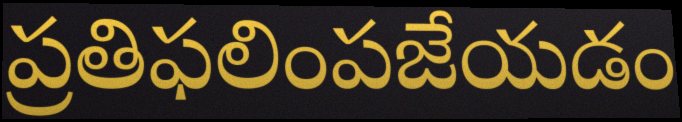
ప్రతిఫలింపజేయడం